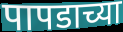
पापडाच्या